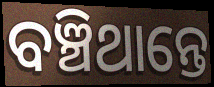
ବଞ୍ଚିଥାନ୍ତେ